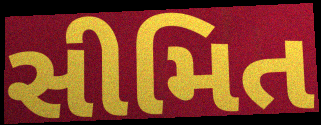
સીમિત